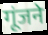
गूंजने